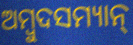
ଅମ୍ୱୁଦସମ୍ୟାନ୍